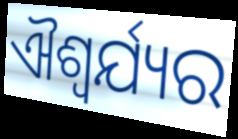
ଐଶ୍ୱର୍ଯ୍ୟର